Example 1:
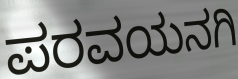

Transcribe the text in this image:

ಪರವಯನಗಿ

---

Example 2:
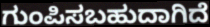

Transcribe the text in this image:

ಗುಂಪಿಸಬಹುದಾಗಿದೆ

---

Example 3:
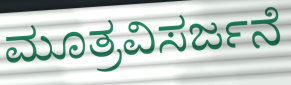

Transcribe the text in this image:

ಮೂತ್ರವಿಸರ್ಜನೆ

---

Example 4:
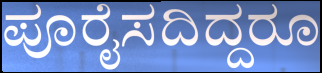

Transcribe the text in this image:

ಪೂರೈಸದಿದ್ದರೂ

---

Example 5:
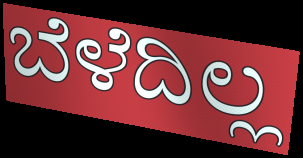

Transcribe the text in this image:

ಬೆಳೆದಿಲ್ಲ